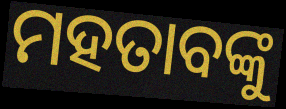
ମହତାବଙ୍କୁ